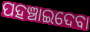
ପହଞ୍ଚାଇଦେବା